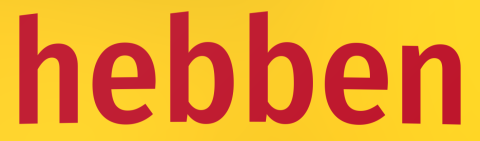
hebben